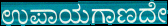
ಉಪಾಯಗಾಣದೇ